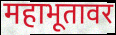
महाभूतावर